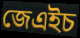
জেএইচ